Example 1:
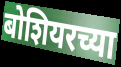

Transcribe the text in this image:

बोशियरच्या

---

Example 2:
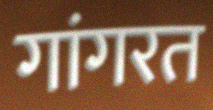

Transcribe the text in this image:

गांगरत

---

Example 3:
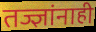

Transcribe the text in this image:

तज्ज्ञांनाही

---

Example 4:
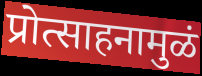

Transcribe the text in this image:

प्रोत्साहनामुळं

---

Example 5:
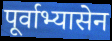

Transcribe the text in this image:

पूर्वाभ्यासेन